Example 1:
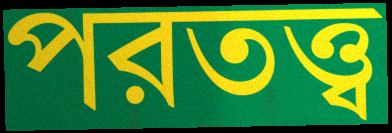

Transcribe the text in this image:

পরতত্ত্ব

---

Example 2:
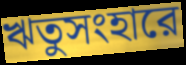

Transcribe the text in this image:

ঋতুসংহারে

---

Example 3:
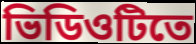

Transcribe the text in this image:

ভিডিওটিতে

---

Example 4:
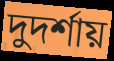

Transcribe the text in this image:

দুদর্শায়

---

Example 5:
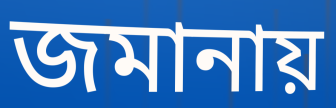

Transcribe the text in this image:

জমানায়